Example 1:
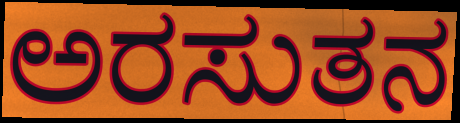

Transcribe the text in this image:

ಅರಸುತನ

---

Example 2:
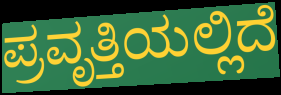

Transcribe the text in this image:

ಪ್ರವೃತ್ತಿಯಲ್ಲಿದೆ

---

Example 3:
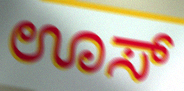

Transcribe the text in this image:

ಊಸ್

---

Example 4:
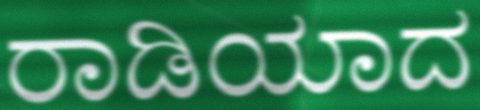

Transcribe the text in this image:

ರಾಡಿಯಾದ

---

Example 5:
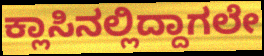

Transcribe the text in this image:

ಕ್ಲಾಸಿನಲ್ಲಿದ್ದಾಗಲೇ